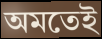
অমতেই